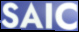
SAIC